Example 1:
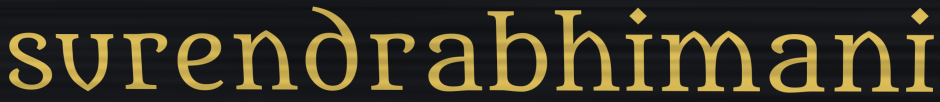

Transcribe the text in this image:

surendrabhimani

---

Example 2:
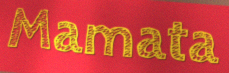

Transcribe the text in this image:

Mamata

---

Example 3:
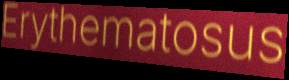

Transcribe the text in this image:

Erythematosus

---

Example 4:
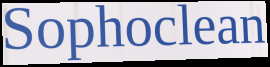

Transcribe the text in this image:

Sophoclean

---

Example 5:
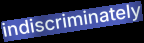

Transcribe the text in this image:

indiscriminately